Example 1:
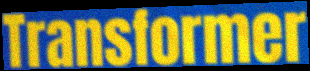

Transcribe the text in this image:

Transformer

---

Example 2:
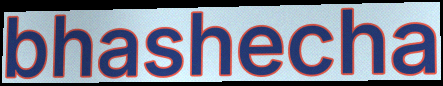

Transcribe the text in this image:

bhashecha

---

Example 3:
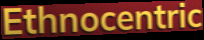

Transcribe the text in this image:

Ethnocentric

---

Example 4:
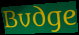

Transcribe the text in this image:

Budge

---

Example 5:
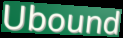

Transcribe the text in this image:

Ubound